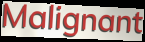
Malignant